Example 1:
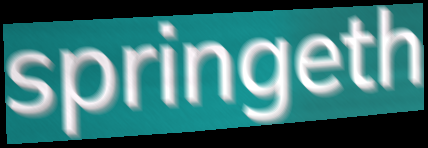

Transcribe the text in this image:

springeth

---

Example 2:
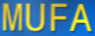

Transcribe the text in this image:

MUFA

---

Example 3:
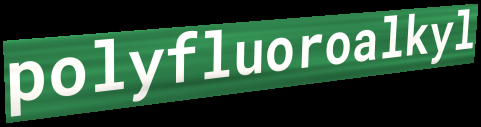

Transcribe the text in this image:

polyfluoroalkyl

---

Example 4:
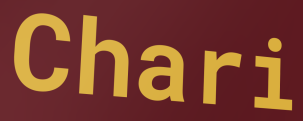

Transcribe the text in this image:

Chari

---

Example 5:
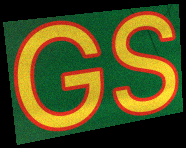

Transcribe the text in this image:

GS